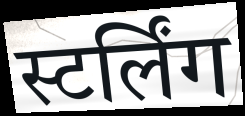
स्‍टर्लिंग